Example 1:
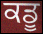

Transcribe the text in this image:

ਕਡੂ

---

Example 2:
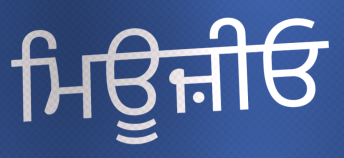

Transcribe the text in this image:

ਮਿਊਜ਼ੀਓ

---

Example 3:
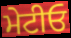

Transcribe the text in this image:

ਮੇਟੀਓ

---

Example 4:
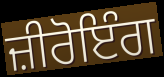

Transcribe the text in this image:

ਜ਼ੀਰੋਇੰਗ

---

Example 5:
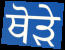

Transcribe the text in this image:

ਥੋਡ਼ੇ